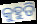
କୁହୁଡି